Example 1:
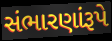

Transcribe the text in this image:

સંભારણાંરૂપે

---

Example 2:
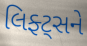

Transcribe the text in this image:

લિફ્ટ્સને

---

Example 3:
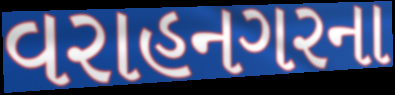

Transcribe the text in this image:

વરાહનગરના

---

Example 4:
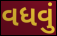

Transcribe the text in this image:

વધવું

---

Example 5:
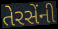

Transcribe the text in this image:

તેરસેંની